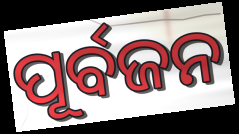
ପୂର୍ବଜନ